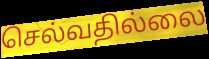
செல்வதில்லை